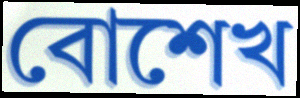
বোশেখ